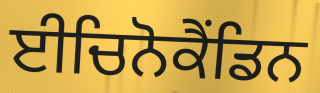
ਈਚਿਨੋਕੈਂਡਿਨ